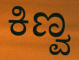
ಕಿಣ್ವ